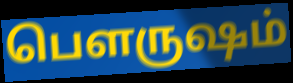
பௌருஷம்